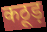
कठूड़